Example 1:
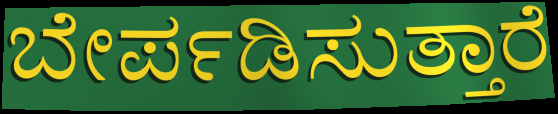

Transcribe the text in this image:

ಬೇರ್ಪಡಿಸುತ್ತಾರೆ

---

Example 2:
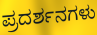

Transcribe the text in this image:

ಪ್ರದರ್ಶನಗಳು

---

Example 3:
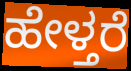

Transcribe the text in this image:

ಹೇಳ್ತರೆ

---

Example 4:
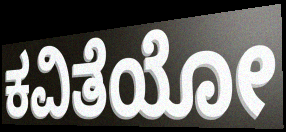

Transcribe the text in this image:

ಕವಿತೆಯೋ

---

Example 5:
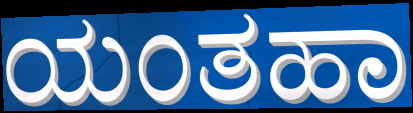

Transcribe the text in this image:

ಯಂತಹಾ